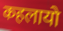
कहलायो